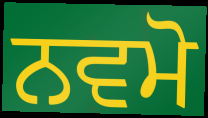
ਨਵਮੋ